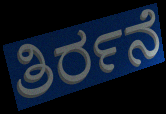
ತಿರ್ರನೆ